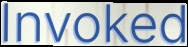
Invoked